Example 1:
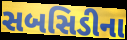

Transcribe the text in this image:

સબસિડીના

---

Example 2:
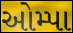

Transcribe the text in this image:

ઓમ્પા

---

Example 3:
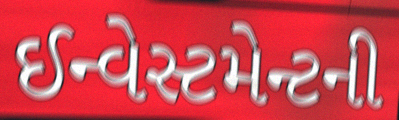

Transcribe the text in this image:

ઈન્વેસ્ટમેન્ટની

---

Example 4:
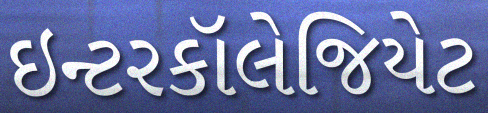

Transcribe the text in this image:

ઇન્ટરકૉલેજિયેટ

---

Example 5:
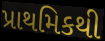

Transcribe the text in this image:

પ્રાથમિકથી